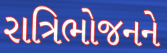
રાત્રિભોજનને